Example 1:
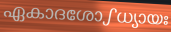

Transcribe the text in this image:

ഏകാദശോഽധ്യായഃ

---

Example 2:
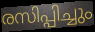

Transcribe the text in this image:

രസിപ്പിച്ചും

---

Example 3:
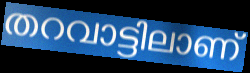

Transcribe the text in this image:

തറവാട്ടിലാണ്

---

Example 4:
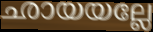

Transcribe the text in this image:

ഛായയല്ലേ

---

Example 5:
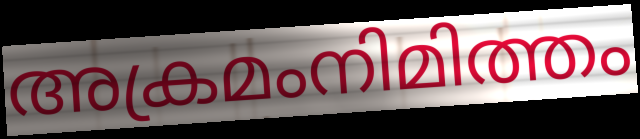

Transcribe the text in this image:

അക്രമംനിമിത്തം